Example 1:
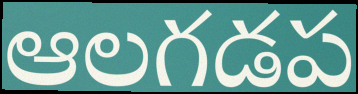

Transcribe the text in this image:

ఆలగడప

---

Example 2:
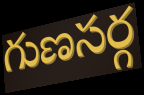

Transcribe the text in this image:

గుణసర్గ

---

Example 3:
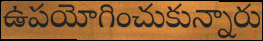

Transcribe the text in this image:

ఉపయోగించుకున్నారు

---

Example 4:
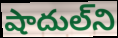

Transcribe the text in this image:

షాదుల్‌ని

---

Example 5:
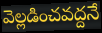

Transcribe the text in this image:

వెల్లడించవద్దనే